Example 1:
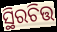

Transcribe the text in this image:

ସ୍ଥିରଚିତ୍ତ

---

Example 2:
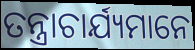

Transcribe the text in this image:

ତନ୍ତ୍ରାଚାର୍ଯ୍ୟମାନେ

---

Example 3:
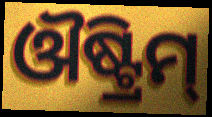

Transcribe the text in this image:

ଔଷ୍ଟ୍ରିମ୍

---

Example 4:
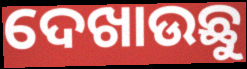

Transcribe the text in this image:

ଦେଖାଉଛୁ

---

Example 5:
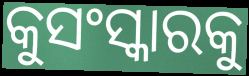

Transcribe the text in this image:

କୁସଂସ୍କାରକୁ